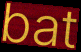
bat